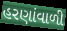
હરણાંવાળી